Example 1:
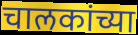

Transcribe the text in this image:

चालकांच्या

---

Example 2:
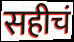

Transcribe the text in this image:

सहीचं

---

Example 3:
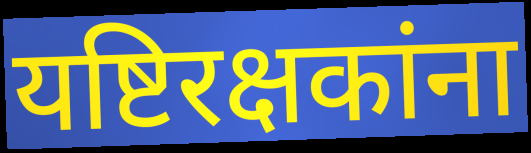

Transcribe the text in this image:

यष्टिरक्षकांना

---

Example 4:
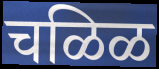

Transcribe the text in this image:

चळिळ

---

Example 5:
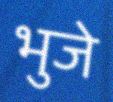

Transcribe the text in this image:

भुजे